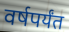
वर्षपर्यंत